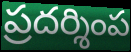
ప్రదర్శింప